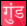
गुंड